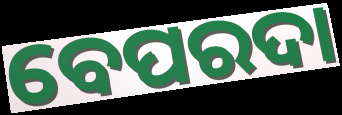
ବେପରଦା